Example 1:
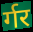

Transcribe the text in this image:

र्गर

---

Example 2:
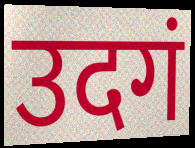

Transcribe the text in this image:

उदगं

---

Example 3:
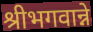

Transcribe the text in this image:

श्रीभगवान्ने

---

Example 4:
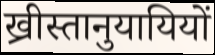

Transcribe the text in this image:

ख्रीस्तानुयायियों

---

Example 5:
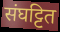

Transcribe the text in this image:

संघट्टित